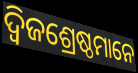
ଦ୍ୱିଜଶ୍ରେଷ୍ଠମାନେ